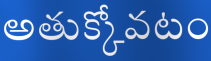
అతుక్కోవటం